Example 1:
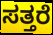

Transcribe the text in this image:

ಸತ್ತರೆ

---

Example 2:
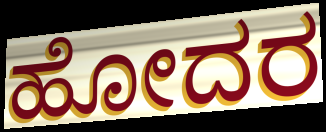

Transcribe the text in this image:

ಹೋದರ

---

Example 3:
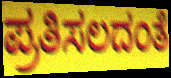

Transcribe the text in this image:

ಪ್ರತಿಸಲದಂತೆ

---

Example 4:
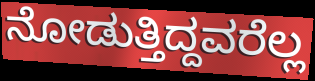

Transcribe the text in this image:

ನೋಡುತ್ತಿದ್ದವರೆಲ್ಲ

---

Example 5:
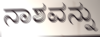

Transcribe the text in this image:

ನಾಶವನ್ನು